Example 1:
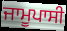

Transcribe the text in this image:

ਜਾਮੂਪਾਸੀ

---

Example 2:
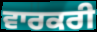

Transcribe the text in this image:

ਵਾਰਕਰੀ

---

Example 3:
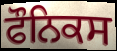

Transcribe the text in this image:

ਫੌਨਿਕਸ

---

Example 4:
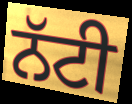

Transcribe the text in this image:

ਨੱਟੀ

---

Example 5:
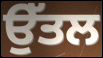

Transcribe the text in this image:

ਉੱਤਲ